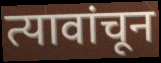
त्यावांचून